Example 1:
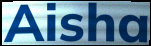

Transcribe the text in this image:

Aisha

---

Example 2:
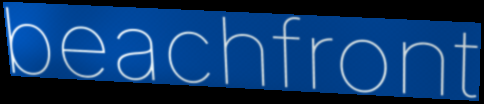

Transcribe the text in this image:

beachfront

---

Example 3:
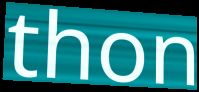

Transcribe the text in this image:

thon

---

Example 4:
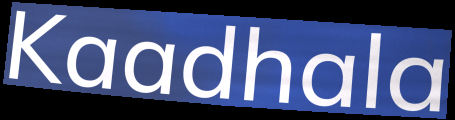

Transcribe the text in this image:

Kaadhala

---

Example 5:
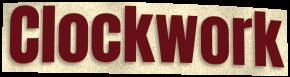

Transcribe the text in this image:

Clockwork